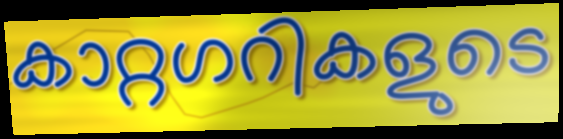
കാറ്റഗറികളുടെ